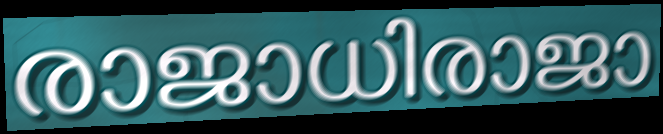
രാജാധിരാജാ